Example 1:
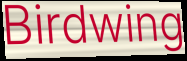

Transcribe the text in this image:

Birdwing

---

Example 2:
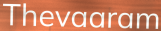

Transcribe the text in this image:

Thevaaram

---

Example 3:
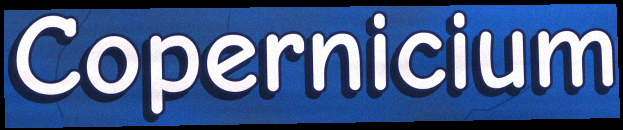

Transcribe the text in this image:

Copernicium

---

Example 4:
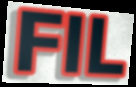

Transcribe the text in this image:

FIL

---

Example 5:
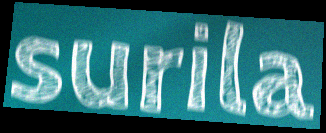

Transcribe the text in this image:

surila